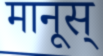
मानूस्